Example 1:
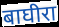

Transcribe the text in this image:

बाघीरा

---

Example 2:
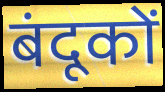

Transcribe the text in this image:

बंदूकों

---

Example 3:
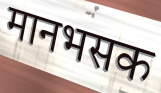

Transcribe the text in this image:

मानभसक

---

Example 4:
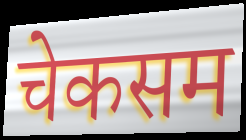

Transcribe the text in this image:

चेकसम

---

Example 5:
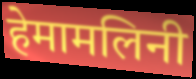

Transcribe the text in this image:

हेमामलिनी